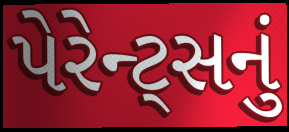
પેરેન્ટ્સનું